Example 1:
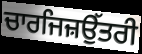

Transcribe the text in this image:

ਚਾਰਜਿਜ਼ਉੱਤਰੀ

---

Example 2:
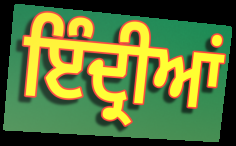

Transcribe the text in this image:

ਇੰਦ੍ਰੀਆਂ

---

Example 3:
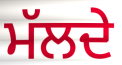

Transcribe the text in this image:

ਮੱਲਦੇ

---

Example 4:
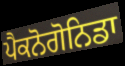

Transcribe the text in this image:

ਪੈਕਨੋਗੋਨਿਡਾ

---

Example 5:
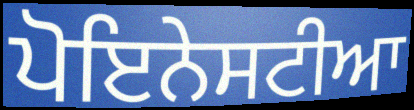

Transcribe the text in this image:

ਪੋਇਨੇਸਟੀਆ